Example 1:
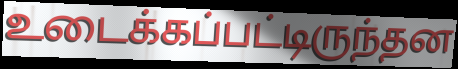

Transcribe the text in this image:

உடைக்கப்பட்டிருந்தன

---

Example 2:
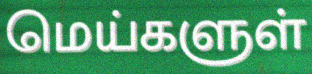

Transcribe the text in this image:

மெய்களுள்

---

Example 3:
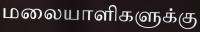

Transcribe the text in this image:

மலையாளிகளுக்கு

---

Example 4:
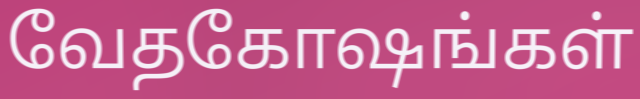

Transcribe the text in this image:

வேதகோஷங்கள்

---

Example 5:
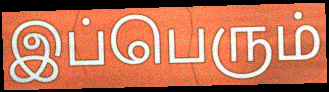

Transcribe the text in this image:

இப்பெரும்